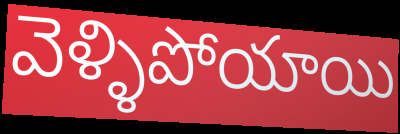
వెళ్ళిపోయాయి